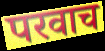
परवाच